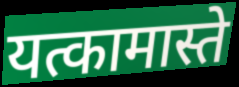
यत्कामास्ते